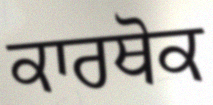
ਕਾਰਥੋਕ